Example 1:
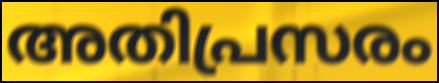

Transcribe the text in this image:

അതിപ്രസരം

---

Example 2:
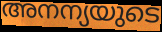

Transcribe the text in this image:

അനന്യയുടെ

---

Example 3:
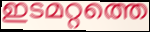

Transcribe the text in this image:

ഇടമറ്റത്തെ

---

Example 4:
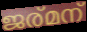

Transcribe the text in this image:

ജര്മന്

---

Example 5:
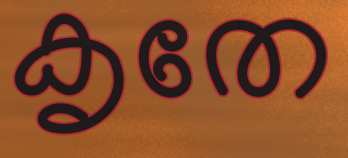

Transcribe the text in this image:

കൃതേ